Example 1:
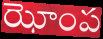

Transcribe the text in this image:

ఝోంప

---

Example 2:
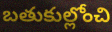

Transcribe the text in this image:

బతుకుల్లోంచి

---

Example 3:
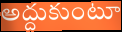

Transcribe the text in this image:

అద్దుకుంటూ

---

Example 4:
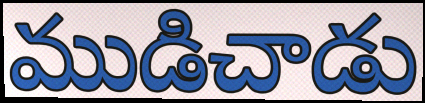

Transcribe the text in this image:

ముడిచాడు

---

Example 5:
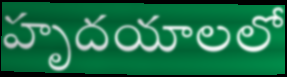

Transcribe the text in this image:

హృదయాలలో